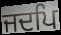
ਜਦਪਿ